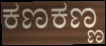
ಕಣಕಣ್ಣ